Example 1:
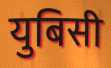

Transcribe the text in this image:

युबिसी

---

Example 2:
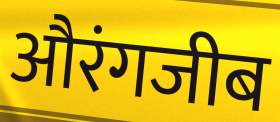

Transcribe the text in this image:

औरंगजीब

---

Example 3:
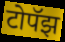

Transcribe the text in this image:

टोपॅझ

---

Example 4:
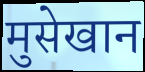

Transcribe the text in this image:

मुसेखान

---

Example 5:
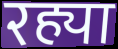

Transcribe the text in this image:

रह्या